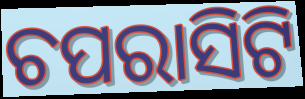
ଚପରାସିଟି